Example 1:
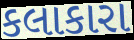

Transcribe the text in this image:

કલાકારા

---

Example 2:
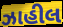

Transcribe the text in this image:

ઝાહીલ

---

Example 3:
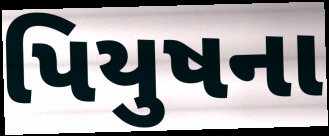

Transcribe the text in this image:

પિયુષના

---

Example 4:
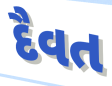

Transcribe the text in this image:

દૈવત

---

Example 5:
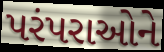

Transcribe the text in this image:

પરંપરાઓને